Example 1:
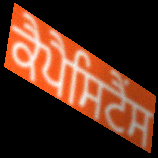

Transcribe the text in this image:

ਕੈਪੈਸਿਟੈਂਸ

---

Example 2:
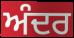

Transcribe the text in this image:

ਅੰਦਰ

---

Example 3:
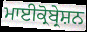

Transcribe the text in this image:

ਮਾਈਕ੍ਰੋਬ੍ਰੇਸ਼ਨ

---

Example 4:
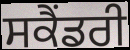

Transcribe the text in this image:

ਸਕੈੰਡਰੀ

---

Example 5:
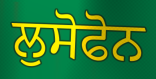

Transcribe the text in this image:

ਲੁਸੋਫੋਨ